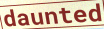
daunted